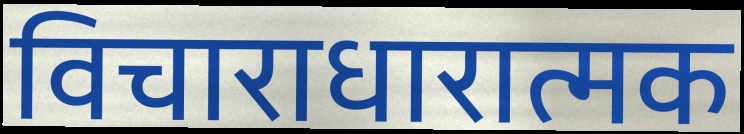
विचाराधारात्मक